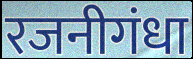
रजनीगंधा